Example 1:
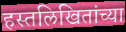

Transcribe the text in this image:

हस्तलिखितांच्या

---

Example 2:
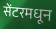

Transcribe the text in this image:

सेंटरमधून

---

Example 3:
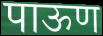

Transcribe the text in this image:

पाऊण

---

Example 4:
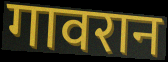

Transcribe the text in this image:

गावरान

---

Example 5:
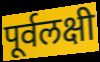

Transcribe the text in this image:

पूर्वलक्षी